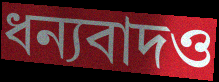
ধন্যবাদও